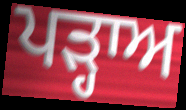
ਪੜ੍ਹਾਅ